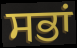
ਸਭਾਂ